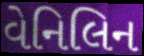
વેનિલિન